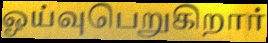
ஓய்வுபெறுகிறார்